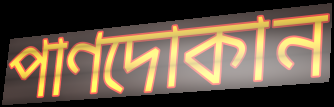
পাণদোকান